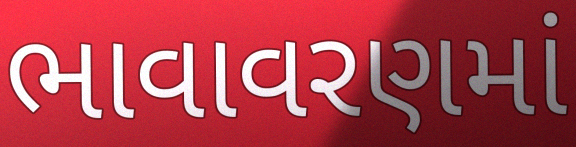
ભાવાવરણમાં